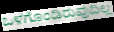
ಒಳಗೊಂಡಿರುವುದಿಲ್ಲ